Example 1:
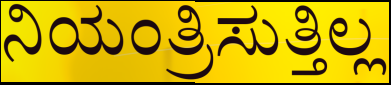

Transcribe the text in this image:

ನಿಯಂತ್ರಿಸುತ್ತಿಲ್ಲ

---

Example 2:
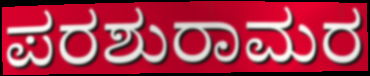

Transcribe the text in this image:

ಪರಶುರಾಮರ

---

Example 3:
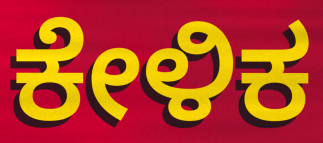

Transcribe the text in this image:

ಕೇಳಿಕ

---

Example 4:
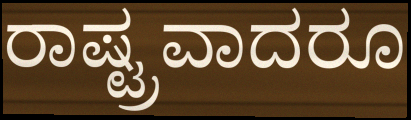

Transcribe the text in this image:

ರಾಷ್ಟ್ರವಾದರೂ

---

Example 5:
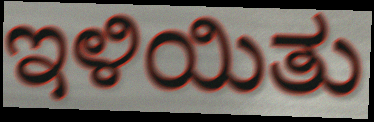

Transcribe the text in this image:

ಇಳಿಯಿತು